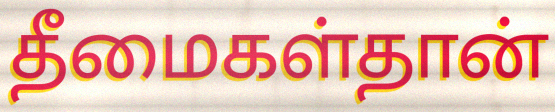
தீமைகள்தான்